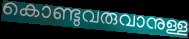
കൊണ്ടുവരുവാനുള്ള